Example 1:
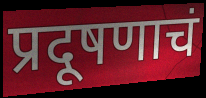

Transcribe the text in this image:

प्रदूषणाचं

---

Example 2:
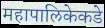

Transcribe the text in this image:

महापालिकेकडे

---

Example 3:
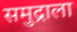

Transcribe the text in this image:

समुद्राला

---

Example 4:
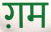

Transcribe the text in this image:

ग़म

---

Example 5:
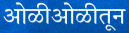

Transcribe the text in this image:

ओळीओळीतून